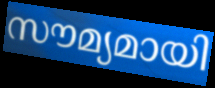
സൗമ്യമായി